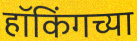
हॉकिंगच्या